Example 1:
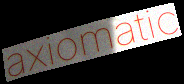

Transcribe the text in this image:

axiomatic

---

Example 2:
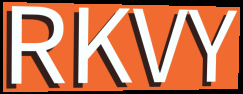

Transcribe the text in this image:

RKVY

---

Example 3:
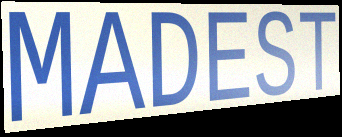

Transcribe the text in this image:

MADEST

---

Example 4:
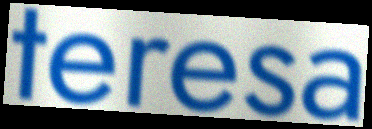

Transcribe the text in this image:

teresa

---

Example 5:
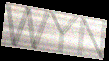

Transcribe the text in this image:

WYN